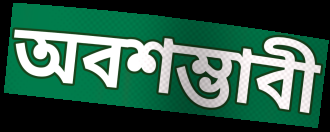
অবশম্ভাবী